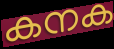
കനക